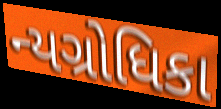
ન્યગ્રોધિકા